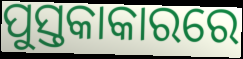
ପୁସ୍ତକାକାରରେ